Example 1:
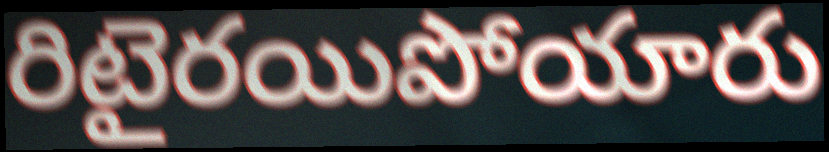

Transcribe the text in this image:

రిటైరయిపోయారు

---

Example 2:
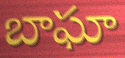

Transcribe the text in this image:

బాఘా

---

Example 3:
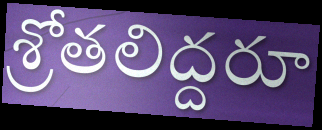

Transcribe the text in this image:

శ్రోతలిద్దరూ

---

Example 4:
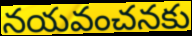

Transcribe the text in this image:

నయవంచనకు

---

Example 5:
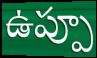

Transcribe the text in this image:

ఉప్పూ